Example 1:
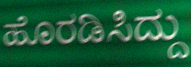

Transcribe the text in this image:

ಹೊರಡಿಸಿದ್ದು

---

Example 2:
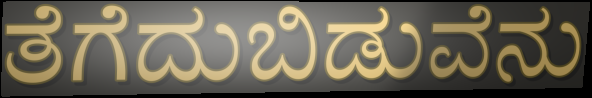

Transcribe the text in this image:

ತೆಗೆದುಬಿಡುವೆನು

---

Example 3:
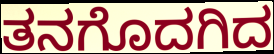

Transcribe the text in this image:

ತನಗೊದಗಿದ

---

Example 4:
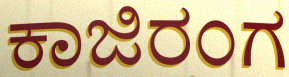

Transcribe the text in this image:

ಕಾಜಿರಂಗ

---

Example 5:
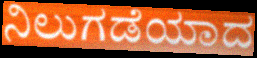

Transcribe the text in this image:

ನಿಲುಗಡೆಯಾದ